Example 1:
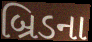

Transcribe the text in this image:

બ્રિડના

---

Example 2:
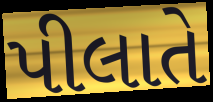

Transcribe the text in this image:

પીલાતે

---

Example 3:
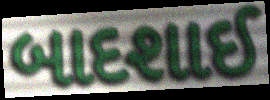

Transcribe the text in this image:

બાદશાઈ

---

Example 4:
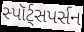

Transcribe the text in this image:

સ્પૉર્ટ્સપર્સન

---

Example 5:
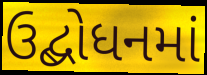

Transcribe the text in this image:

ઉદ્બોધનમાં